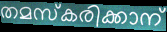
തമസ്കരിക്കാന്